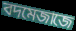
বদমেজাজে